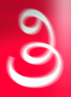
ತಿ